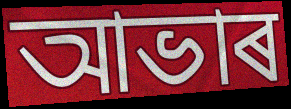
আভাৰ